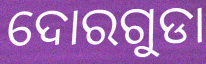
ଦୋରଗୁଡା